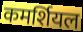
कमर्शियल